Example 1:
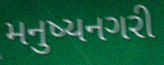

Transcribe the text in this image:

મનુષ્યનગરી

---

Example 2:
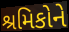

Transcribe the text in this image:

શ્રમિકોને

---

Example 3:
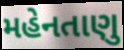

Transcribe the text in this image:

મહેનતાણુ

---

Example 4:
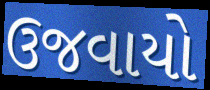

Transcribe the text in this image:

ઉજવાયો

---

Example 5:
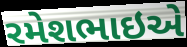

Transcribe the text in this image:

રમેશભાઇએ